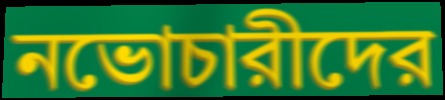
নভোচারীদের